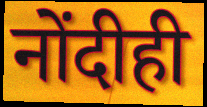
नोंदीही